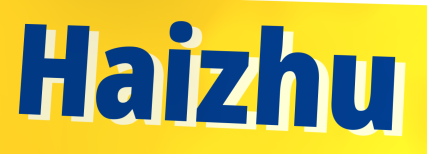
Haizhu